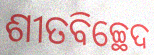
ଶୀତବିଚ୍ଛେଦ